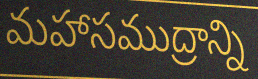
మహాసముద్రాన్ని